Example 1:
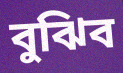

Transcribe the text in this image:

বুঝিব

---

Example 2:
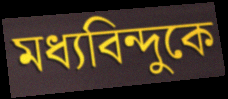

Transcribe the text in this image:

মধ্যবিন্দুকে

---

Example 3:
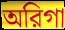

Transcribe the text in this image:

অরিগা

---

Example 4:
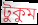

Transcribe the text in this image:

টুকুম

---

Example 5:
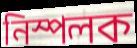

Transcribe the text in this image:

নিস্পলক